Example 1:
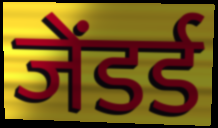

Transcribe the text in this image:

जेंडर्ड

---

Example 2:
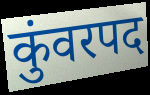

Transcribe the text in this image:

कुंवरपद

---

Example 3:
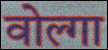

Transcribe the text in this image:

वोल्गा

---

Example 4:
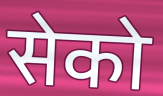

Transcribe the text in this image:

सेको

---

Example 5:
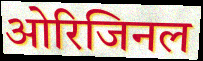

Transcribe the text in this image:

ओरिजिनल